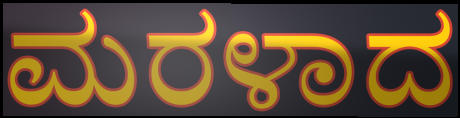
ಮರಳಾದ